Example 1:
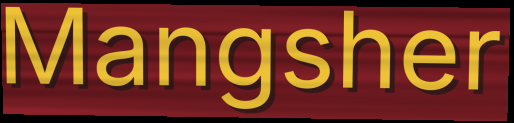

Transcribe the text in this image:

Mangsher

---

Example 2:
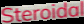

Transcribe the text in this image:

Steroidal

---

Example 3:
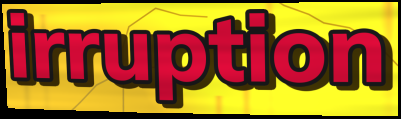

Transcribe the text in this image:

irruption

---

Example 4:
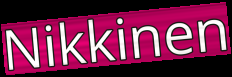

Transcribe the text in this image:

Nikkinen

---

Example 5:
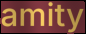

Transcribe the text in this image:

amity